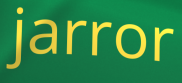
jarror